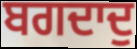
ਬਗਦਾਦੁ